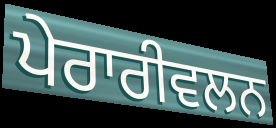
ਪੇਰਾਰੀਵਲਨ